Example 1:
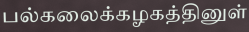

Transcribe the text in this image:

பல்கலைக்கழகத்தினுள்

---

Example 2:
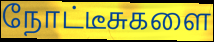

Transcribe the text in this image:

நோட்டீசுகளை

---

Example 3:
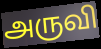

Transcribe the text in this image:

அருவி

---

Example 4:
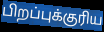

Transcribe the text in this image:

பிறப்புக்குரிய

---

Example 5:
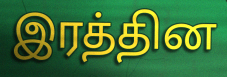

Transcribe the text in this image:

இரத்தின